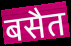
बसैत